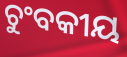
ଚୁଂବକୀୟ